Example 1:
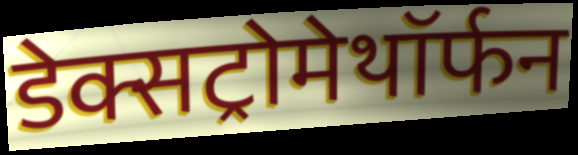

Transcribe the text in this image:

डेक्सट्रोमेथॉर्फन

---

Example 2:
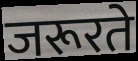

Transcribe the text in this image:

जरूरते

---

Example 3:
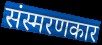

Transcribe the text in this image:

संस्मरणकार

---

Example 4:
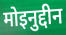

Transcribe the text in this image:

मोइनुद्दीन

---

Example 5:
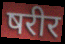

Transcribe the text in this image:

षरीर